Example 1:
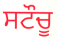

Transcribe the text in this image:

ਸਟੌਚੂ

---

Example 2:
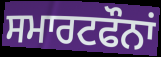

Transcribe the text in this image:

ਸਮਾਰਟਫੌਨਾਂ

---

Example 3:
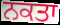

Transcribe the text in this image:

ਨਕਤਾ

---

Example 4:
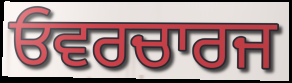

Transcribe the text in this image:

ਓਵਰਚਾਰਜ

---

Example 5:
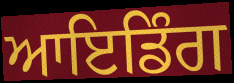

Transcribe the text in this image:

ਆਇਡਿੰਗ